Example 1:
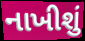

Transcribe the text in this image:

નાખીશું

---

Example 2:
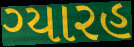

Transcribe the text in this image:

ગ્યારહ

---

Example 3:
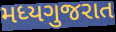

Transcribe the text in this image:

મધ્યગુજરાત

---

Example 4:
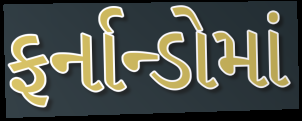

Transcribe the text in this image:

ફર્નાન્ડોમાં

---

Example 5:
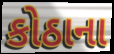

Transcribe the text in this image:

કોઠાના